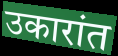
उकारांत